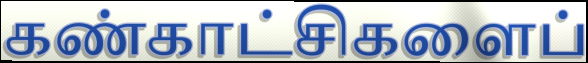
கண்காட்சிகளைப்